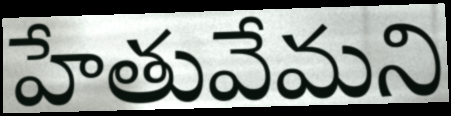
హేతువేమని